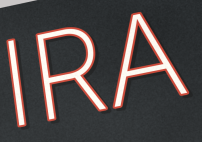
IRA